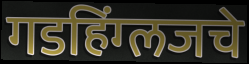
गडहिंग्लजचे